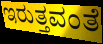
ಇರುತ್ತವಂತೆ